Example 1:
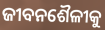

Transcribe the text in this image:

ଜୀବନଶୈଳୀକୁ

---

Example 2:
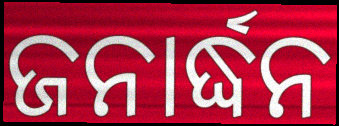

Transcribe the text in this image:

ଜନାର୍ଦ୍ଧନ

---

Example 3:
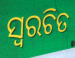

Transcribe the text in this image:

ସ୍ଵରଚିତ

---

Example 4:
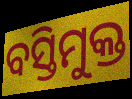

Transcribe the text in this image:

ବସ୍ତିମୁକ୍ତ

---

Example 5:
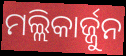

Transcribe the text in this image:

ମଲ୍ଲିକାର୍ଜ୍ଜୁନ